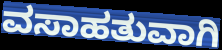
ವಸಾಹತುವಾಗಿ